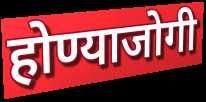
होण्याजोगी